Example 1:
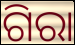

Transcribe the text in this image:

ଗିରା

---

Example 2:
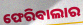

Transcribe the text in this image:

ଫେରିବାଲାର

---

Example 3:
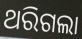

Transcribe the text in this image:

ଥରିଗଲା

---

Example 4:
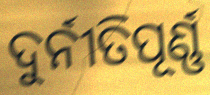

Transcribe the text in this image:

ଦୁର୍ନୀତିପୂର୍ଣ୍ଣ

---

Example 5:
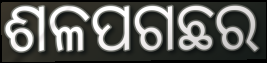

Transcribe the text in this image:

ଶଳପଗଛର